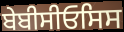
ਬੇਬੀਸੀਓਸਿਸ